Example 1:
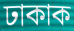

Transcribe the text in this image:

ঢাকাক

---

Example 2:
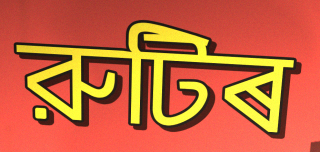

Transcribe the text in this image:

ৰুটিৰ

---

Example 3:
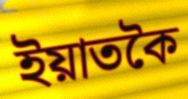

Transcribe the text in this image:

ইয়াতকৈ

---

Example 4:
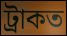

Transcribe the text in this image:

ট্ৰাকত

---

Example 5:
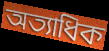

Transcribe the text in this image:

অত্যাধিক